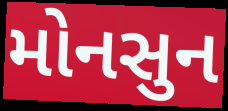
મોનસુન